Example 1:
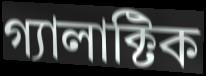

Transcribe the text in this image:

গ্যালাক্টিক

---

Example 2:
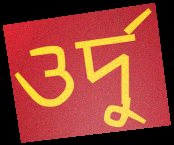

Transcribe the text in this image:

ওর্দু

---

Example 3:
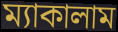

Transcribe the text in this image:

ম্যাকালাম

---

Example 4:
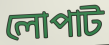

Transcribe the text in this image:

লোপাট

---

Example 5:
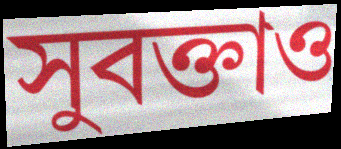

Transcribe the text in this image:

সুবক্তাও